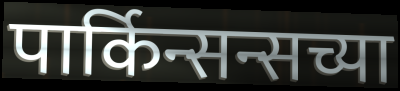
पार्किन्सन्सच्या